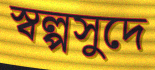
স্বল্পসুদে